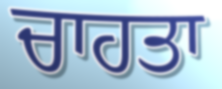
ਚਾਹਤਾ